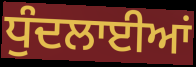
ਧੁੰਦਲਾਈਆਂ